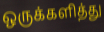
ஒருக்களித்து